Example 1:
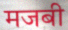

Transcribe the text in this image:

मजबी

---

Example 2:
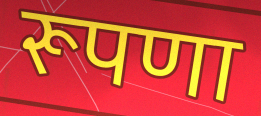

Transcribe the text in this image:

रूपणा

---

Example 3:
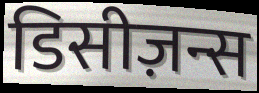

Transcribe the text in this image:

डिसीज़न्स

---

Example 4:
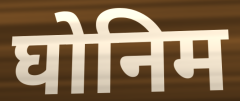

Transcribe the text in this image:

घोनिम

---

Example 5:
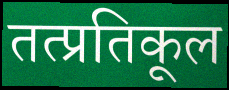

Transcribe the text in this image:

तत्प्रतिकूल